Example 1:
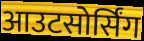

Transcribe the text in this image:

आउटसोर्सिंग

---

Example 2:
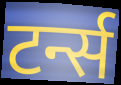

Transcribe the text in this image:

टर्न्स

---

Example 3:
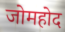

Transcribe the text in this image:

जोमहोद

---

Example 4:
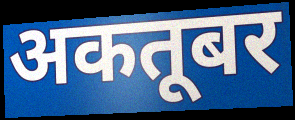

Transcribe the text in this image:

अकतूबर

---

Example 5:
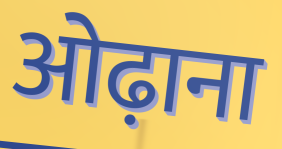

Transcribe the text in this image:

ओढ़ाना